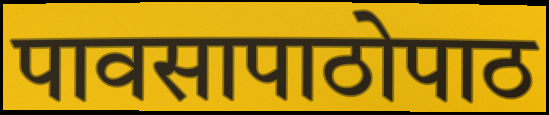
पावसापाठोपाठ